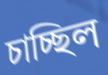
চাচ্ছিল